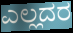
ಎಲ್ಲದರ